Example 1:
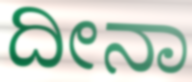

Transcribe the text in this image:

ದೀನಾ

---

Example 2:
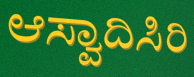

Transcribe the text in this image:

ಆಸ್ವಾದಿಸಿರಿ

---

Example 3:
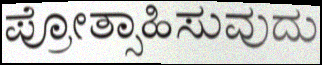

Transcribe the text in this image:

ಪ್ರೋತ್ಸಾಹಿಸುವುದು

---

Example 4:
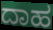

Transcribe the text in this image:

ದಾಹ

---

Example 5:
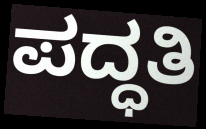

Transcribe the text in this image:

ಪದ್ಧತಿ